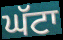
ਘੱਟਾ